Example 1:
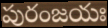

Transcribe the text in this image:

పురంజయః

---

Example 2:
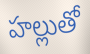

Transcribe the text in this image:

హల్లుతో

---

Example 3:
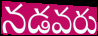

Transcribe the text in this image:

నడవరు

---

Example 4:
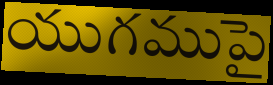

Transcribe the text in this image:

యుగముపై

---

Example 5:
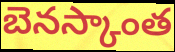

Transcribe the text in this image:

బెనస్కాంత